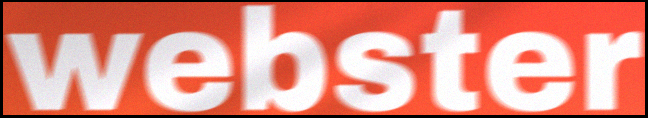
webster